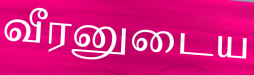
வீரனுடைய